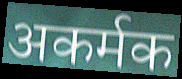
अकर्मक